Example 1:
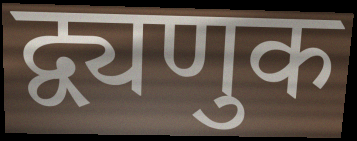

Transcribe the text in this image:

द्व्यणुक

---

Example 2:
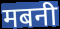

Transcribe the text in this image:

मबनी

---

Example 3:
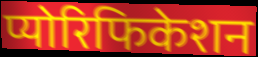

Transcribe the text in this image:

प्योरिफिकेशन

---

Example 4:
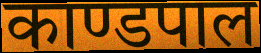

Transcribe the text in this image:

काण्डपाल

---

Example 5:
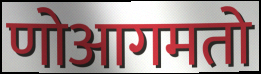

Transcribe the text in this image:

णोआगमतो